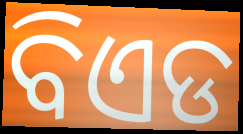
ବିଏଡ